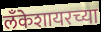
लँकेशायरच्या